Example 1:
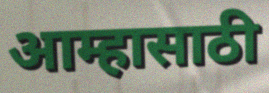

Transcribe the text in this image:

आम्हासाठी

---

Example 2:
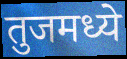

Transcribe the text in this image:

तुजमध्ये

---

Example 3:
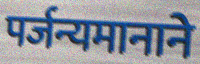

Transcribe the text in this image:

पर्जन्यमानाने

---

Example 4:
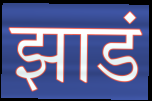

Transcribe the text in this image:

झाडं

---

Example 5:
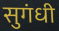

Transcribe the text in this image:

सुगंधी